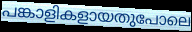
പങ്കാളികളായതുപോലെ